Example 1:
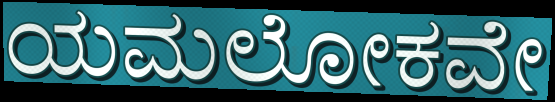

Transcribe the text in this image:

ಯಮಲೋಕವೇ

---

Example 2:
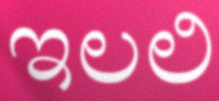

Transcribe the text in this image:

ಇಲಲಿ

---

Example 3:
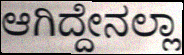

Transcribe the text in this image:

ಆಗಿದ್ದೇನಲ್ಲಾ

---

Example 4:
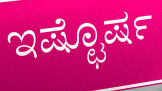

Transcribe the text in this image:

ಇಷ್ಟೊರ್ಷ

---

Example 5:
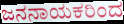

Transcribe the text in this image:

ಜನನಾಯಕರಿಂದ